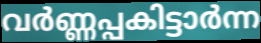
വർണ്ണപ്പകിട്ടാർന്ന